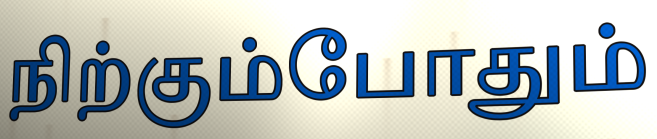
நிற்கும்போதும்